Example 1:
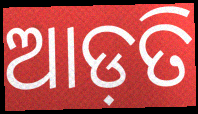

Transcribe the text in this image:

ଆଡ଼ତି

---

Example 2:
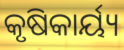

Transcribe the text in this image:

କୃଷିକାର୍ୟ୍ୟ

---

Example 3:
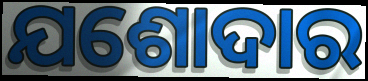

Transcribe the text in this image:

ଯଶୋଦାର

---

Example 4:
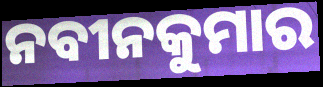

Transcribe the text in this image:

ନବୀନକୁମାର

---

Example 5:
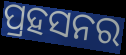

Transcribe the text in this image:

ପ୍ରହସନର